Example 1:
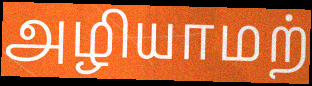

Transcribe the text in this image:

அழியாமற்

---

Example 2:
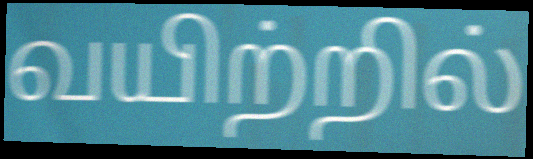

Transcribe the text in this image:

வயிற்றில்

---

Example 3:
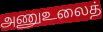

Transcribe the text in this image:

அணுஉலைத்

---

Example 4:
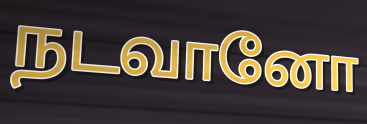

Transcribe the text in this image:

நடவானோ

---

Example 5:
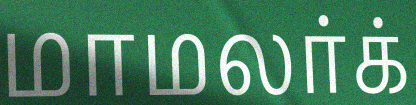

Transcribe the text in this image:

மாமலர்க்